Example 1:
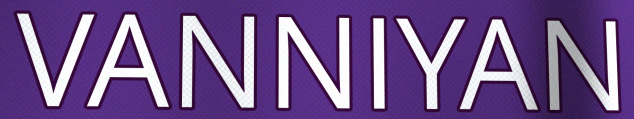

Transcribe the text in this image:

VANNIYAN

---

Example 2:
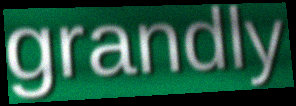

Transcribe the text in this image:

grandly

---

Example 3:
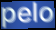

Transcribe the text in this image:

pelo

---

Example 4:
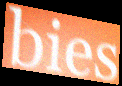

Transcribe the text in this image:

bies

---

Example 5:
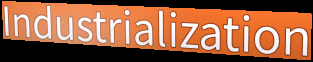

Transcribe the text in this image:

Industrialization